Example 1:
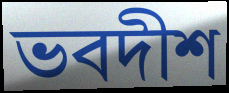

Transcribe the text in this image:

ভবদীশ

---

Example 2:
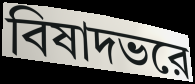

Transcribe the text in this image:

বিষাদভরে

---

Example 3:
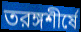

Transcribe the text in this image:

তরঙ্গশীর্ষে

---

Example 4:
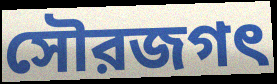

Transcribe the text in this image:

সৌরজগৎ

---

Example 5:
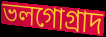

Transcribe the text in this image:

ভলগোগ্রাদ